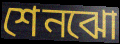
শেনঝো